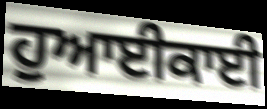
ਹੁਆਈਕਾਈ